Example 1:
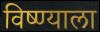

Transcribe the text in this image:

विष्ण्याला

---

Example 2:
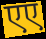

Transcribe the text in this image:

एए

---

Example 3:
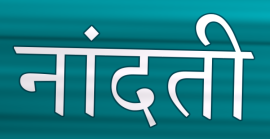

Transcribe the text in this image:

नांदती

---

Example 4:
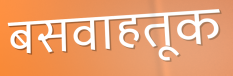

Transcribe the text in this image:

बसवाहतूक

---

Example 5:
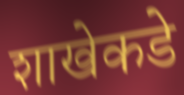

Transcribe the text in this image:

शाखेकडे